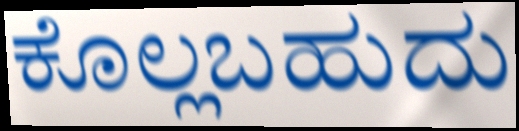
ಕೊಲ್ಲಬಹುದು